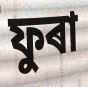
ফুৰা